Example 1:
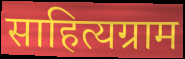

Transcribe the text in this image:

साहित्यग्राम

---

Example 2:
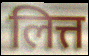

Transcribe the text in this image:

लित्त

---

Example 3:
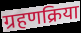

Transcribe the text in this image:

ग्रहणक्रिया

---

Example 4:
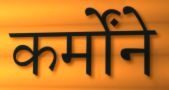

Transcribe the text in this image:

कर्मोंने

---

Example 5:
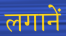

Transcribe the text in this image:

लगानें